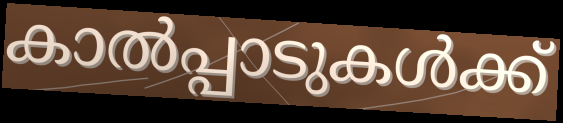
കാൽപ്പാടുകൾക്ക്